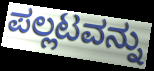
ಪಲ್ಲಟವನ್ನು